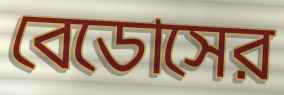
বেডোসের